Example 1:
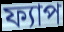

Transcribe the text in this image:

ফ্যাপ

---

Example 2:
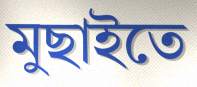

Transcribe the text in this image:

মুছাইতে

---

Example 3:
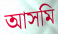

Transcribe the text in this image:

আসমি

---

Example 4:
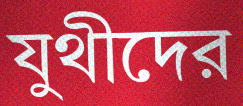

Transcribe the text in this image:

যুথীদের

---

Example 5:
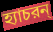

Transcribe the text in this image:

হ্যাচরন্